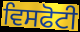
ਵਿਸਫੋਟੀ